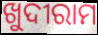
ଖୁଦୀରାମ